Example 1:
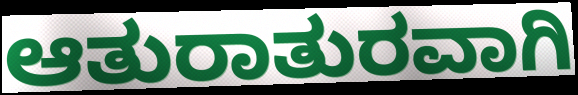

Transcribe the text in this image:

ಆತುರಾತುರವಾಗಿ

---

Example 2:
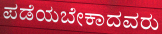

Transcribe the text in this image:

ಪಡೆಯಬೇಕಾದವರು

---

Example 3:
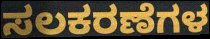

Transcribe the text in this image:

ಸಲಕರಣೆಗಳ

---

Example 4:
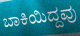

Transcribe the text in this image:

ಬಾಕಿಯಿದ್ದವು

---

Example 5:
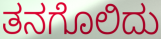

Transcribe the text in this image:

ತನಗೊಲಿದು